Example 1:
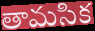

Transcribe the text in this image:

తామసిక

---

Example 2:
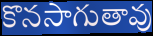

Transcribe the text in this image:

కొనసాగుతావు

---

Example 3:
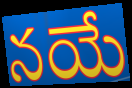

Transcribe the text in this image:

నయే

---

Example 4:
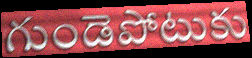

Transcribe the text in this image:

గుండెపోటుకు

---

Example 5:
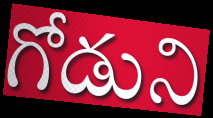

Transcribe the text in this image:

గోడుని